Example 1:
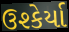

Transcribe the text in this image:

ઉશ્કેર્યા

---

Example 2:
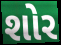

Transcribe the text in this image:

શોર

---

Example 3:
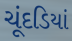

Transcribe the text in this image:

ચૂંદડિયાં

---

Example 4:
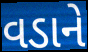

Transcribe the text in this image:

વડાને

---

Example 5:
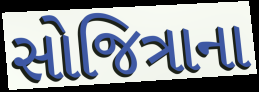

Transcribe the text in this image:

સોજિત્રાના